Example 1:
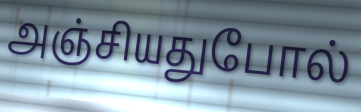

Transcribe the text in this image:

அஞ்சியதுபோல்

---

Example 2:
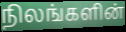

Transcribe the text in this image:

நிலங்களின்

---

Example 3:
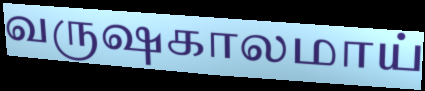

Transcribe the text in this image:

வருஷகாலமாய்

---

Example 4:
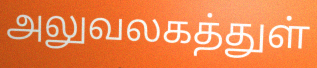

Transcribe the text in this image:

அலுவலகத்துள்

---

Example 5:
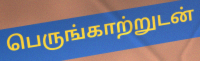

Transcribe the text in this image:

பெருங்காற்றுடன்